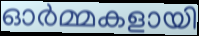
ഓർമ്മകളായി